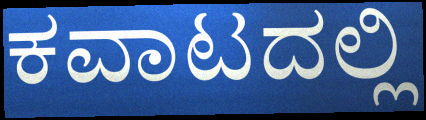
ಕವಾಟದಲ್ಲಿ